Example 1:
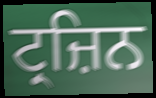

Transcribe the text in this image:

ਟ੍ਰਜ਼ਿਨ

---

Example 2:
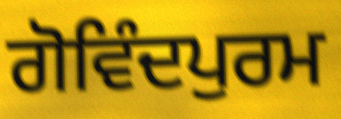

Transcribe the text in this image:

ਗੋਵਿੰਦਪੁਰਮ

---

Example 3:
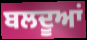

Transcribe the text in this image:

ਬਲਦੂਆਂ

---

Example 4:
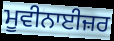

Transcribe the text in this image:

ਮੂਵੀਨਾਈਜ਼ਰ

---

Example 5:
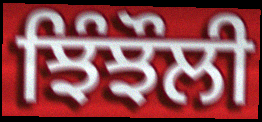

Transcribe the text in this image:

ਝਿੰਝੌਲੀ